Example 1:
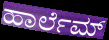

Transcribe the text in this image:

ಹಾರ್ಲೆಮ್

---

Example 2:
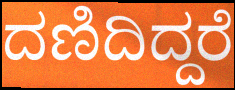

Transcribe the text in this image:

ದಣಿದಿದ್ದರೆ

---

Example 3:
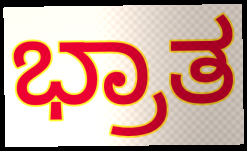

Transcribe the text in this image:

ಭ್ರಾತ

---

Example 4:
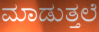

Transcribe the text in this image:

ಮಾಡುತ್ತಲೆ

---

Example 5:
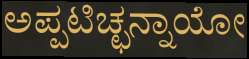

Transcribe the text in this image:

ಅಪ್ಪಟಿಚ್ಛನ್ನಾಯೋ